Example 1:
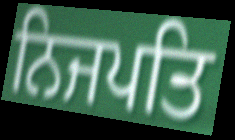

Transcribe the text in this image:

ਨਿਜਪਤਿ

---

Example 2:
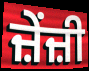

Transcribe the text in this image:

ਜ਼ੇਂਜ਼ੀ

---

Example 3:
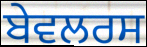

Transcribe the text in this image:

ਬੇਵਲਰਸ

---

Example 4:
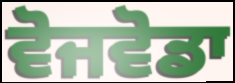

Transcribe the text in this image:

ਵੋਜਵੋਡਾ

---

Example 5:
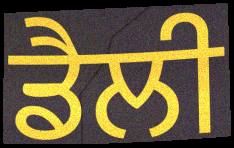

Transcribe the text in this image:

ਡੈਲੀ